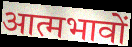
आत्मभावों